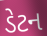
ડેટન